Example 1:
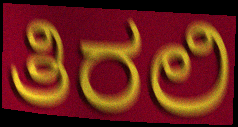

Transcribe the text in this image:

ತಿರಲಿ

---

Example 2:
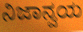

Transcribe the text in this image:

ನಿಜಾನ್ವಯ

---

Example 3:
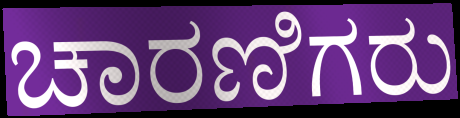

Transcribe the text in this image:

ಚಾರಣಿಗರು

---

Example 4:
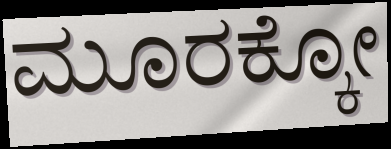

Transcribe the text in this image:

ಮೂರಕ್ಕೋ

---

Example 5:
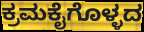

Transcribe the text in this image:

ಕ್ರಮಕೈಗೊಳ್ಳದ